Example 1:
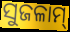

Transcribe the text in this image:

ସୁଜଳାମ୍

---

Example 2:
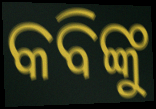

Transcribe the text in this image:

କବିଙ୍କୁ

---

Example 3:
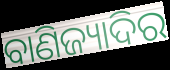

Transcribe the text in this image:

ବାଣିଜ୍ୟାଦିର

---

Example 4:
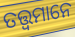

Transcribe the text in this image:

ତତ୍ତ୍ବମାନେ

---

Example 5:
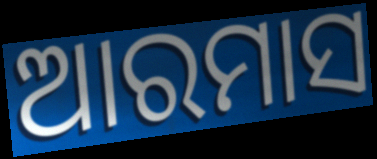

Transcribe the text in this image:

ଆରମାସ